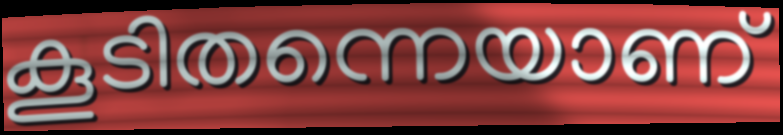
കൂടിതന്നെയാണ്